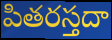
పితరస్తదా